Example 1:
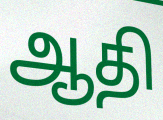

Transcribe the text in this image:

ஆதி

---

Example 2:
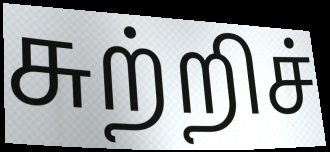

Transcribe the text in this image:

சுற்றிச்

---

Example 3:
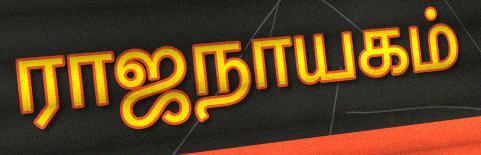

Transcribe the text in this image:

ராஜநாயகம்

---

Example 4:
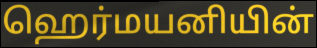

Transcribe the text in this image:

ஹெர்மயனியின்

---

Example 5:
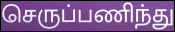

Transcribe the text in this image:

செருப்பணிந்து